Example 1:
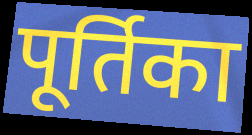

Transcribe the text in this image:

पूर्तिका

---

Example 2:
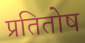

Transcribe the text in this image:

प्रतितोष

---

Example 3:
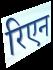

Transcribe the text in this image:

रिएन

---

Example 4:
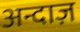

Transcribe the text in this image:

अन्दाज़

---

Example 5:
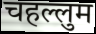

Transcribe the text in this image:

चहल्लुम